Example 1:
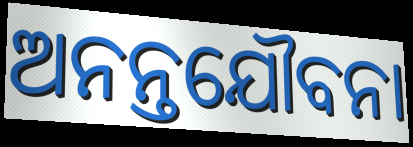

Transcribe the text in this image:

ଅନନ୍ତଯୌବନା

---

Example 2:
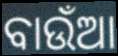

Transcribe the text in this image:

ବାଉଁଆ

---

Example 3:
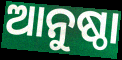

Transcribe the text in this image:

ଆନୁଷ୍ଠା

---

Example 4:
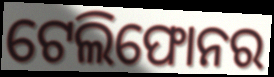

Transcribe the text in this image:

ଟେଲିଫୋନର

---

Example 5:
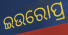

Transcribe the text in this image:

ଇଉରୋପ୍ର